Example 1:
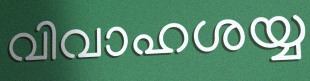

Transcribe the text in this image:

വിവാഹശയ്യ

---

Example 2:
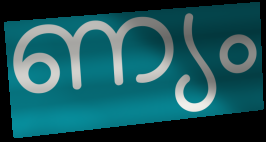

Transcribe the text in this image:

ണ്യം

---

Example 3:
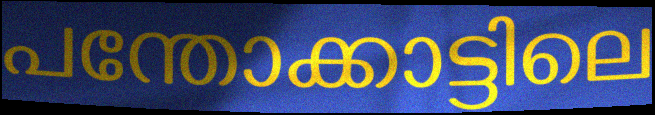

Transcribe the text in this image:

പന്തോക്കാട്ടിലെ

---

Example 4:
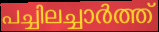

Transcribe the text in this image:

പച്ചിലച്ചാർത്ത്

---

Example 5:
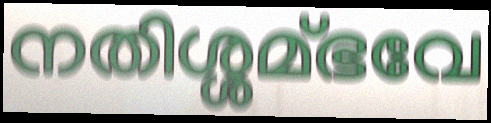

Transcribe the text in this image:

നതിശ്ശമ്ഭവേ